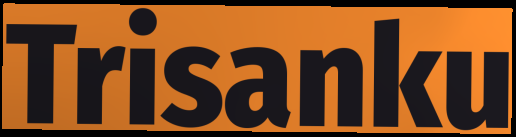
Trisanku